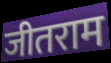
जीतराम